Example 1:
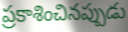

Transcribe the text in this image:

ప్రకాశించినప్పుడు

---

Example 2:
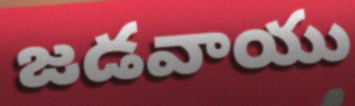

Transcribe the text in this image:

జడవాయు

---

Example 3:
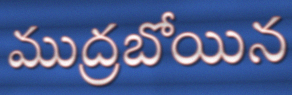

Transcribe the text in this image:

ముద్రబోయిన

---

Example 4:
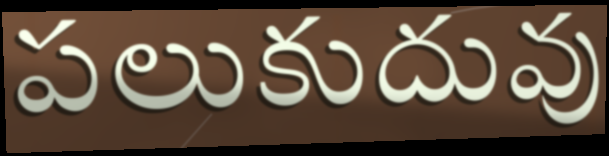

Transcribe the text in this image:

పలుకుదువు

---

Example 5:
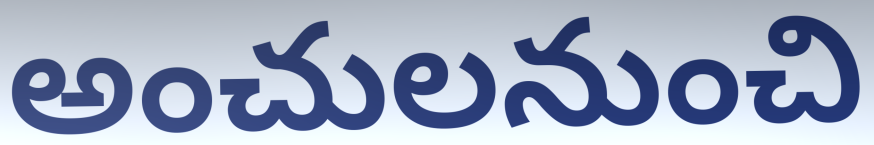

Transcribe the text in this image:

అంచులనుంచి